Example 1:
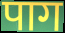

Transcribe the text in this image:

पाग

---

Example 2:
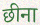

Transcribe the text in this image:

छीना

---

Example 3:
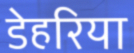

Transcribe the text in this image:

डेहरिया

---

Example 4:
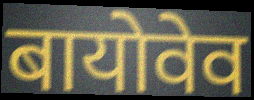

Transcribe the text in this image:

बायोवेव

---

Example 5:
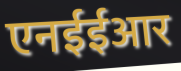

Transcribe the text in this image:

एनईईआर